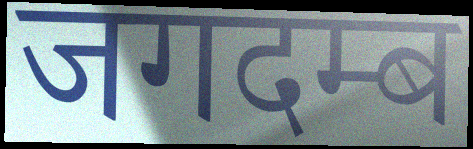
जगदम्ब